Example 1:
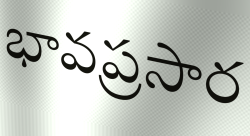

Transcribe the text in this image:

భావప్రసార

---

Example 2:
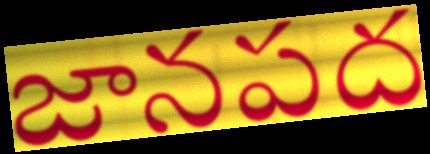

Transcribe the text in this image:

జానపద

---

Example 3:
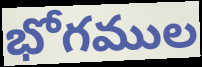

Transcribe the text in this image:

భోగముల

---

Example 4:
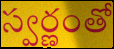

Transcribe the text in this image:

స్వర్ణంతో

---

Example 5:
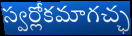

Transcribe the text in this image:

స్వర్లోకమాగచ్ఛ